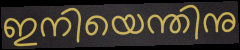
ഇനിയെന്തിനു